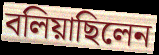
বলিয়াছিলেন